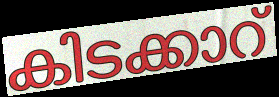
കിടക്കാറ്